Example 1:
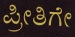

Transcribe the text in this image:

ಪ್ರೀತಿಗೇ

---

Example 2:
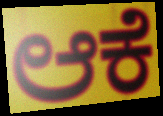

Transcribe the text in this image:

ಆಕೆ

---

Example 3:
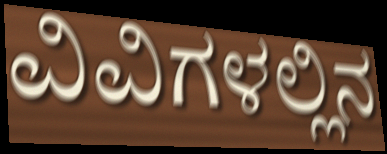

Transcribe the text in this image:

ವಿವಿಗಳಲ್ಲಿನ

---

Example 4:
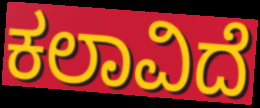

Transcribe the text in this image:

ಕಲಾವಿದೆ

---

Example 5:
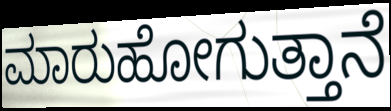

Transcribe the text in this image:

ಮಾರುಹೋಗುತ್ತಾನೆ